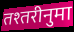
तश्तरीनुमा